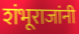
शंभूराजांनी